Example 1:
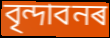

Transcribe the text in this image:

বৃন্দাবনৰ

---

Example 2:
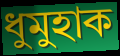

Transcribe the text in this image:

ধুমুহাক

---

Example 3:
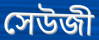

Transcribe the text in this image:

সেউজী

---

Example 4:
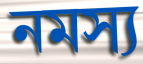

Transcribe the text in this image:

নমস্য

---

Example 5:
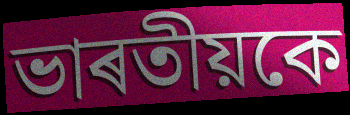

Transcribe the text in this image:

ভাৰতীয়কে